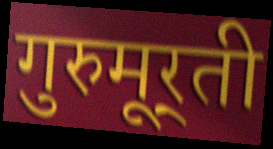
गुरुमूर्ती